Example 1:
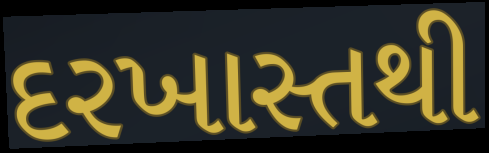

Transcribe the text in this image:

દરખાસ્તથી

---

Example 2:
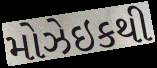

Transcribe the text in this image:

મોઝેઇકથી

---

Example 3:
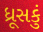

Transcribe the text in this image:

ધ્રૂસકું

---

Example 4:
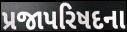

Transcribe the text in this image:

પ્રજાપરિષદના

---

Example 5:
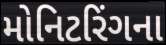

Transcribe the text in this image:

મોનિટરિંગના